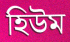
হিউম